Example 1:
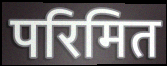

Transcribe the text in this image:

परिमित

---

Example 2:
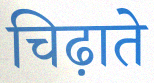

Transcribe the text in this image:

चिढ़ाते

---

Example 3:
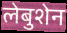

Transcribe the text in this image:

लेबुशेन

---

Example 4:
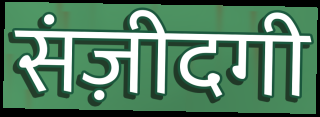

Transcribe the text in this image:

संज़ीदगी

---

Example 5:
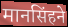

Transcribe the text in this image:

मानसिंहने